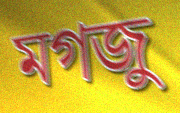
মগজু